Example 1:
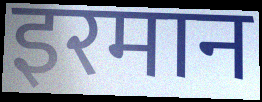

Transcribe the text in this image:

इरमान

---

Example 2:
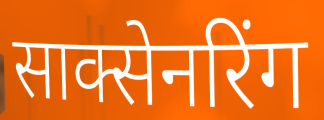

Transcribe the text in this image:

साक्सेनरिंग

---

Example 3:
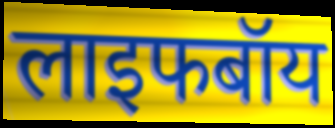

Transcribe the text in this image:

लाइफबॉय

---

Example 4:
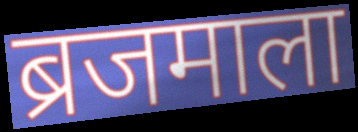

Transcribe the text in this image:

ब्रजमाला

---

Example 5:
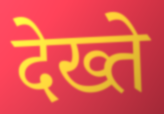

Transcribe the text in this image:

देख्ते